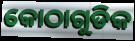
କୋଠାଗୁଡିକ